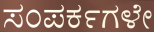
ಸಂಪರ್ಕಗಳೇ